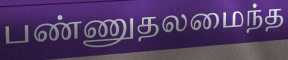
பண்ணுதலமைந்த